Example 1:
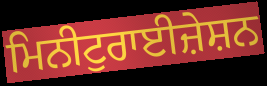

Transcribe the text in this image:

ਮਿਨੀਟੁਰਾਈਜ਼ੇਸ਼ਨ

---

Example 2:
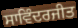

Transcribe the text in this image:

ਸਾਵਿੰਦਰਜੀਤ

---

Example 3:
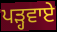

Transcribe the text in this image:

ਪੜ੍ਹਵਾਏ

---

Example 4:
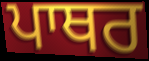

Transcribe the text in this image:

ਪਾਥਰ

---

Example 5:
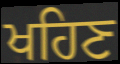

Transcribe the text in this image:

ਖਹਿਣ